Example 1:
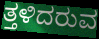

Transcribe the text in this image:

ತ್ತಳಿದರುವ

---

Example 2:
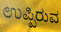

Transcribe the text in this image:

ಉಪ್ಪಿರುವ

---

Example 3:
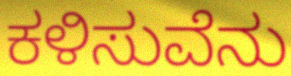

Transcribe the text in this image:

ಕಳಿಸುವೆನು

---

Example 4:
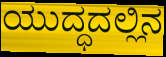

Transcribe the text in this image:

ಯುದ್ಧದಲ್ಲಿನ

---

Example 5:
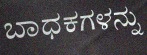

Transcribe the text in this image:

ಬಾಧಕಗಳನ್ನು